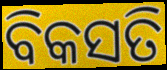
ବିକସତି